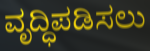
ವೃದ್ಧಿಪಡಿಸಲು